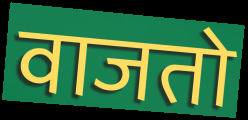
वाजतो